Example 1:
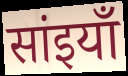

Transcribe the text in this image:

सांइयाँ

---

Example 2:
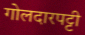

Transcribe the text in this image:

गोलदारपट्टी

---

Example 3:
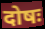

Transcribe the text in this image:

दोषः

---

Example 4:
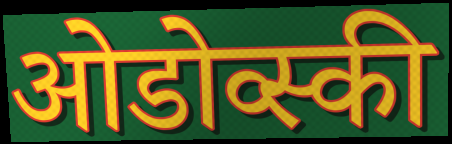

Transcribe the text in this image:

ओडोव्स्की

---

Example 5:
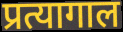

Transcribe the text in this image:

प्रत्यागाल